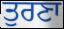
ਤੁਰਣਾ